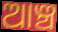
ଆଞ୍ଚ